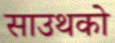
साउथको